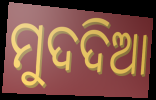
ମୁଦଦିଆ